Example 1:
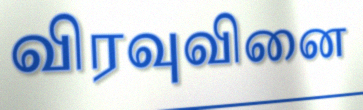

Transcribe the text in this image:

விரவுவினை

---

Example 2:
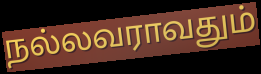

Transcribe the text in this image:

நல்லவராவதும்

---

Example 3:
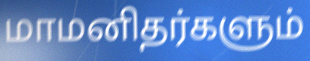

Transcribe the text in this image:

மாமனிதர்களும்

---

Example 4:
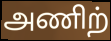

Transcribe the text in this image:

அணிற்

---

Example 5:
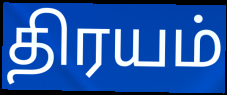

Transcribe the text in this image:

திரயம்